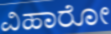
ವಿಹಾರೋ